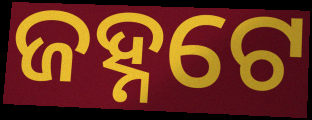
ଜହ୍ନଟେ